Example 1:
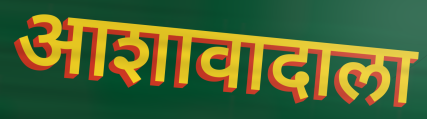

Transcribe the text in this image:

आशावादाला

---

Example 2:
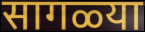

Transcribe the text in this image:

सागळ्या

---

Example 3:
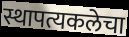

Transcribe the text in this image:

स्थापत्यकलेचा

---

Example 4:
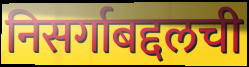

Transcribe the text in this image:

निसर्गाबद्दलची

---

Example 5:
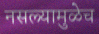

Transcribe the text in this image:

नसल्यामुळेच